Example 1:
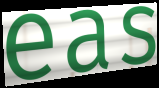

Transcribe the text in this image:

eas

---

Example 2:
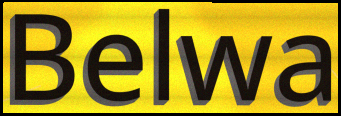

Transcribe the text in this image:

Belwa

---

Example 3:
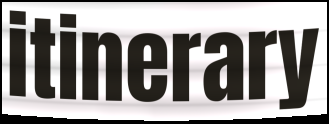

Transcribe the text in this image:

itinerary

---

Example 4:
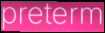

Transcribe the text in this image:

preterm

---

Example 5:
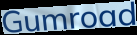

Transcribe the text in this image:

Gumroad